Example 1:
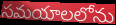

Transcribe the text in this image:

సమయాలలోను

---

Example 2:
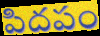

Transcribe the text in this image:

పిదపం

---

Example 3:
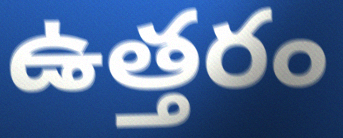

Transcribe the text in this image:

ఉత్తరం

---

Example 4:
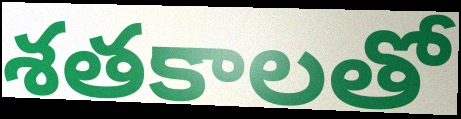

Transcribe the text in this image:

శతకాలతో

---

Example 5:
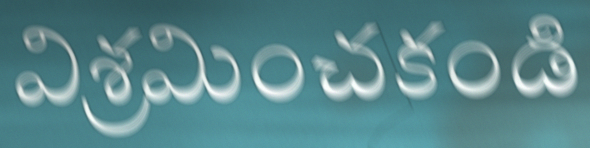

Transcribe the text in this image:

విశ్రమించకండి